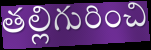
తల్లిగురించి